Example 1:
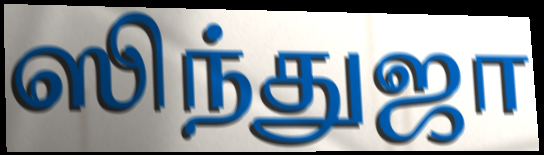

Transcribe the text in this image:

ஸிந்துஜா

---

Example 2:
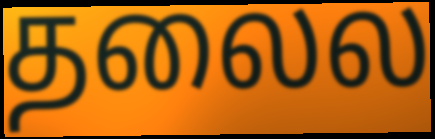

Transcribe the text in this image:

தலைல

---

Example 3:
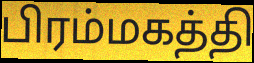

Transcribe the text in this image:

பிரம்மகத்தி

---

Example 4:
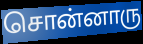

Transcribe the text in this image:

சொன்னாரு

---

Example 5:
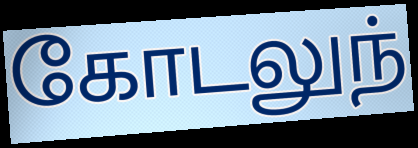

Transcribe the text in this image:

கோடலுந்